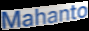
Mahanto